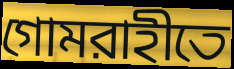
গোমরাহীতে